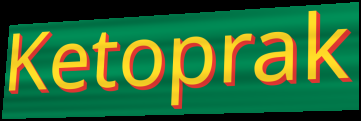
Ketoprak